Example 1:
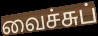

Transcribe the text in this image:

வைச்சுப்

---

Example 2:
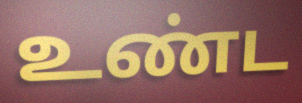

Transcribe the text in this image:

உண்ட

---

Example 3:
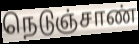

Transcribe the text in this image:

நெடுஞ்சாண்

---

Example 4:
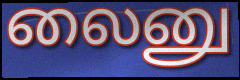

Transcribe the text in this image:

லைனு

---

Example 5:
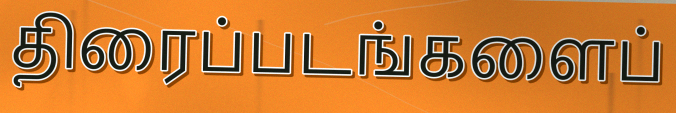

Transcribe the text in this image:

திரைப்படங்களைப்